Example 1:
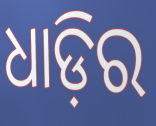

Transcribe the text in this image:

ଧାଡ଼ିର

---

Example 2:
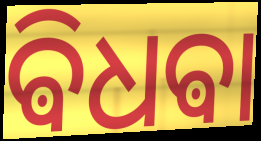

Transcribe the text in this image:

ଵିଧଵା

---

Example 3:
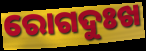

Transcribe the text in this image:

ରୋଗଦୁଃଖ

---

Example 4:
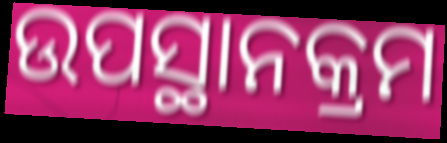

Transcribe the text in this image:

ଉପସ୍ଥାନକ୍ରମ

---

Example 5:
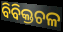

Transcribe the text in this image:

ବିବିକ୍ତଚଳ